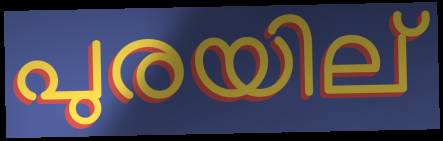
പുരയില്